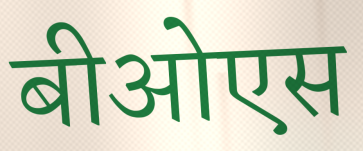
बीओएस